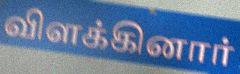
விளக்கினார்